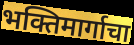
भक्तिमार्गाचा